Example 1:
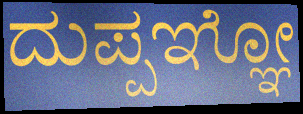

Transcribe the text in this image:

ದುಪ್ಪಞ್ಞೋ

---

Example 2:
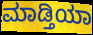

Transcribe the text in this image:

ಮಾಡ್ತಿಯಾ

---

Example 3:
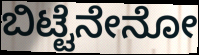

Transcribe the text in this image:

ಬಿಟ್ಟೆನೇನೋ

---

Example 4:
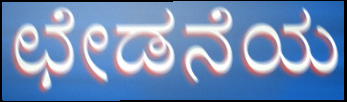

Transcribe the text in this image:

ಛೇಡನೆಯ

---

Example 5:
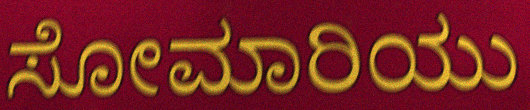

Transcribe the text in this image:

ಸೋಮಾರಿಯು